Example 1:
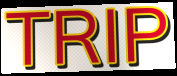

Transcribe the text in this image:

TRIP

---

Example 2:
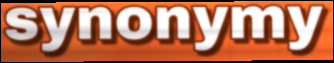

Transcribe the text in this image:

synonymy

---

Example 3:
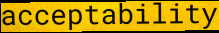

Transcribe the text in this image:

acceptability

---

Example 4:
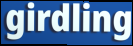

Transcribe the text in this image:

girdling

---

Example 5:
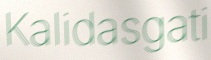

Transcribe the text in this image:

Kalidasgati